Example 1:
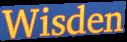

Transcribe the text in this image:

Wisden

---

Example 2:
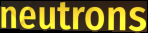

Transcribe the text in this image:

neutrons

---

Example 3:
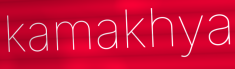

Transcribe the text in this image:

kamakhya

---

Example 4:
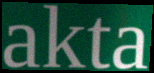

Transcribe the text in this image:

akta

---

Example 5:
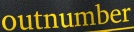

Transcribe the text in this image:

outnumber